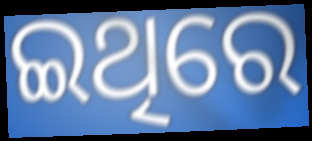
ଇଥିରେ